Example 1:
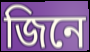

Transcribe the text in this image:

জিনে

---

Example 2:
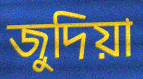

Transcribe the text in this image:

জুদিয়া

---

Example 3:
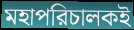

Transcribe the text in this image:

মহাপরিচালকই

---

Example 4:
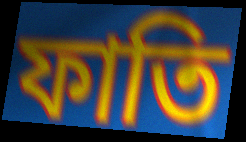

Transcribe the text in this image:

ফাতি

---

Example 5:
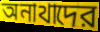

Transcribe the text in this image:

অনাথাদের